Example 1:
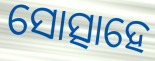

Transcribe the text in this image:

ସୋତ୍ସାହେ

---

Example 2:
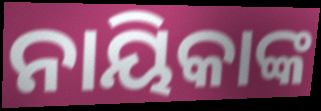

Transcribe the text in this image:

ନାୟିକାଙ୍କ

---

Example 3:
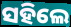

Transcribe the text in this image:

ସହିଲେ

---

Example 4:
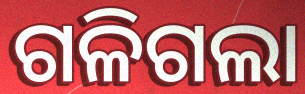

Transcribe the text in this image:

ଗଳିଗଲା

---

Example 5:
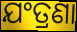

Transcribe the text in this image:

ଯଂତ୍ରଣା